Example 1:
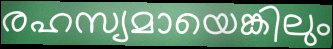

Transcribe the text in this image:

രഹസ്യമായെങ്കിലും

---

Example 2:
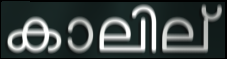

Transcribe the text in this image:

കാലില്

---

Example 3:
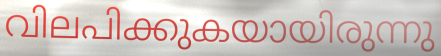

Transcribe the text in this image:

വിലപിക്കുകയായിരുന്നു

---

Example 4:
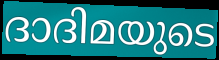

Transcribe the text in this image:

ദാദിമയുടെ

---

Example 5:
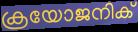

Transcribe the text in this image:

ക്രയോജനിക്